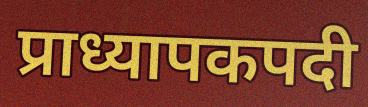
प्राध्यापकपदी